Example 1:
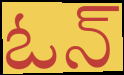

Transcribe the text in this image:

ఓన్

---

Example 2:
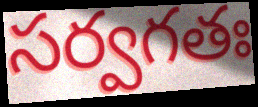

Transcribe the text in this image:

సర్వగతః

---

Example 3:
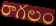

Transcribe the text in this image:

రాగలం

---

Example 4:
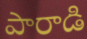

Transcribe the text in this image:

పారాడి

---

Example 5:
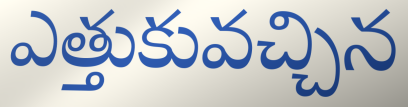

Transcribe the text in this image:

ఎత్తుకువచ్చిన